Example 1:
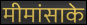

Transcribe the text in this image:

मीमांसाके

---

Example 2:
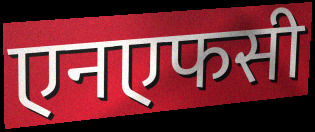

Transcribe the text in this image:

एनएफसी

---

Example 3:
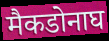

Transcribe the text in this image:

मैकडोनाघ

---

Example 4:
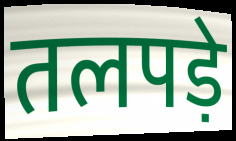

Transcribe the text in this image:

तलपड़े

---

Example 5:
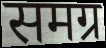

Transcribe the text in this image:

समग्र